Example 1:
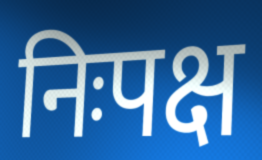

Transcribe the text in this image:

निःपक्ष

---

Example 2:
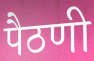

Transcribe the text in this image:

पैठणी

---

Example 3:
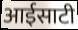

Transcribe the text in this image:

आईसाटी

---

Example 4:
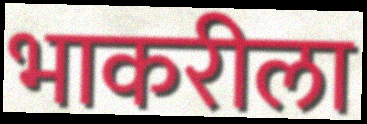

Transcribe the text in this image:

भाकरीला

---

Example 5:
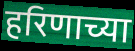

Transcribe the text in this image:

हरिणाच्या